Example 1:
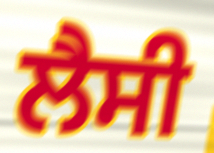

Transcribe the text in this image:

ਲੈਸੀ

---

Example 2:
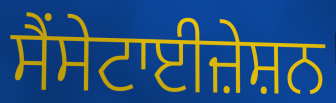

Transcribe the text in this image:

ਸੈਂਸੇਟਾਈਜ਼ੇਸ਼ਨ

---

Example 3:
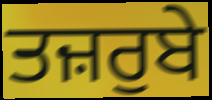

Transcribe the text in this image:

ਤਜ਼ਰੁਬੇ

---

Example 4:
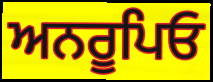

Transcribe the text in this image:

ਅਨਰੂਪਿਓ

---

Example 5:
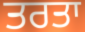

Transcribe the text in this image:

ਤਰਤਾ